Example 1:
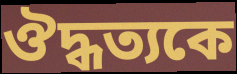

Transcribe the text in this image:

ঔদ্ধত্যকে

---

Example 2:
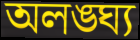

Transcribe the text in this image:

অলঙ্ঘ্য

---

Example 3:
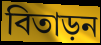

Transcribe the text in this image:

বিতাড়ন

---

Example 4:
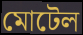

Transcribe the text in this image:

মোটেল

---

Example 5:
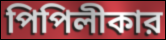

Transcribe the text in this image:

পিপিলীকার